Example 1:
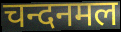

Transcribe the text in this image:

चन्दनमल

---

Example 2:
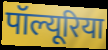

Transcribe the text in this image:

पॉल्यूरिया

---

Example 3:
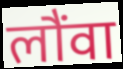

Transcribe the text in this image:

लौंवा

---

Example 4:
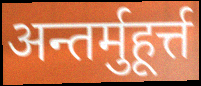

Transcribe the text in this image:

अन्तर्मुहूर्त्त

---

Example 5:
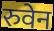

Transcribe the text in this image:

रुवेन